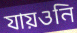
যায়ওনি